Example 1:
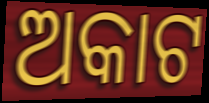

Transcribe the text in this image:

ଅକାଟ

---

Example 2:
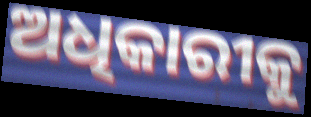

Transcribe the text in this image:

ଅଧିକାରୀକୁ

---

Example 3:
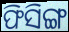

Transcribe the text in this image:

ଫିସିଙ୍ଗ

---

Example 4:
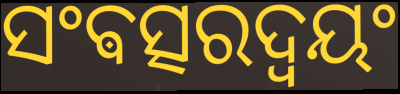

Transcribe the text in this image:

ସଂଵତ୍ସରଦ୍ଵୟଂ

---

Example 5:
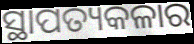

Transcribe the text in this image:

ସ୍ଥାପତ୍ୟକଳାର